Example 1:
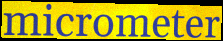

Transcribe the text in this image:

micrometer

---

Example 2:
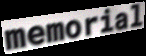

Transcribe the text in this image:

memorial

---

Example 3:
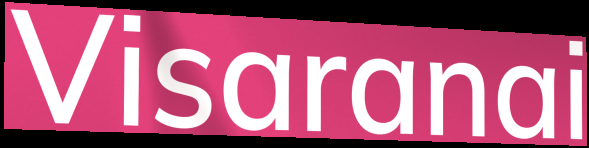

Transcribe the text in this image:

Visaranai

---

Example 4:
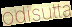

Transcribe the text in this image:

odisutta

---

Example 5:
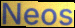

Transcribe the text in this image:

Neos